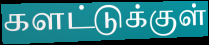
களட்டுக்குள்